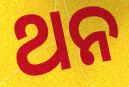
ଥନ